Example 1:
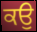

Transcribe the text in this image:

ਕਉੁ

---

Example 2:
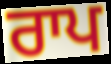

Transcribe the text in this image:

ਰਾਪ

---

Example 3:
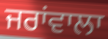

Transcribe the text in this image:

ਜਰਾਂਵਾਲਾ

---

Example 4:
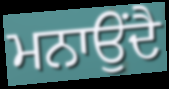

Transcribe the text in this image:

ਮਨਾਉਂਦੈ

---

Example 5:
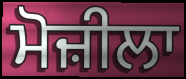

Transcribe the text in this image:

ਮੋਜ਼ੀਲਾ